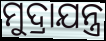
ମୁଦ୍ରାଯନ୍ତ୍ର